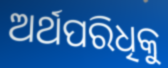
ଅର୍ଥପରିଧିକୁ